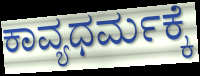
ಕಾವ್ಯಧರ್ಮಕ್ಕೆ